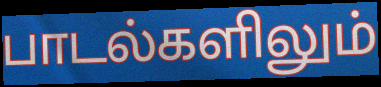
பாடல்களிலும்